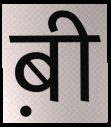
ब़ी